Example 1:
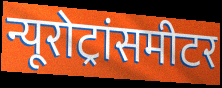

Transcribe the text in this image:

न्यूरोट्रांसमीटर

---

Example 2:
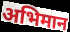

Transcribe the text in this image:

अभिमान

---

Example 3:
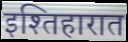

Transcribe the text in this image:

इश्तिहारात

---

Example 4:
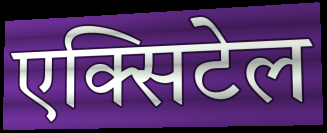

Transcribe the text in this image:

एक्सिटेल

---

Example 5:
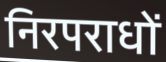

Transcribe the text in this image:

निरपराधों